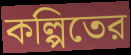
কল্পিতের